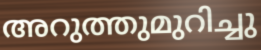
അറുത്തുമുറിച്ചു